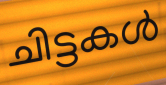
ചിട്ടകൾ